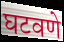
घटवणे